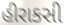
હીરાકસી